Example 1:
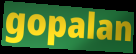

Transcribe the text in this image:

gopalan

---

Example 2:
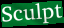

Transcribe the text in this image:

Sculpt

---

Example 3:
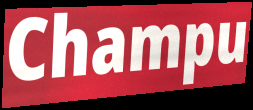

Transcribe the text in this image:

Champu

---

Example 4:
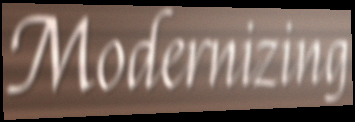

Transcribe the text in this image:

Modernizing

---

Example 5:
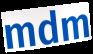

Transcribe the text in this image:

mdm